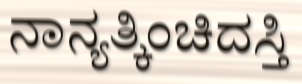
ನಾನ್ಯತ್ಕಿಂಚಿದಸ್ತಿ